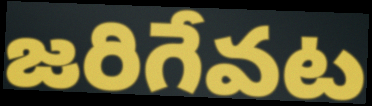
జరిగేవట